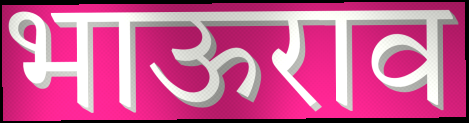
भाऊराव